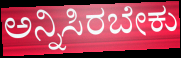
ಅನ್ನಿಸಿರಬೇಕು